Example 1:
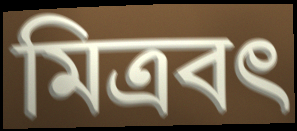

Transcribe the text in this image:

মিত্রবৎ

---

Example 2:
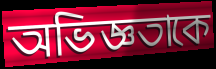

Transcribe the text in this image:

অভিজ্ঞতাকে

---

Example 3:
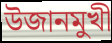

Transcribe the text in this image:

উজানমুখী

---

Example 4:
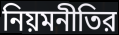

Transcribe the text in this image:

নিয়মনীতির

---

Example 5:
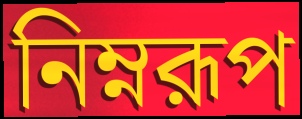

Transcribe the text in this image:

নিম্নরূপ